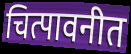
चित्पावनीत